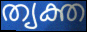
ത്യക്ത